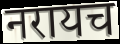
नरायच